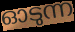
ഓടുന്ന